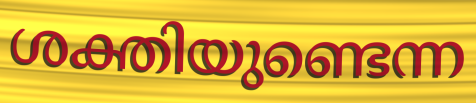
ശക്തിയുണ്ടെന്ന